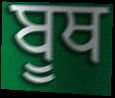
ਬੂਥ